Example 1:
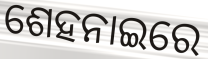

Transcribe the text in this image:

ଶେହନାଇରେ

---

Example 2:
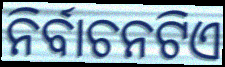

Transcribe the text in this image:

ନିର୍ବାଚନଟିଏ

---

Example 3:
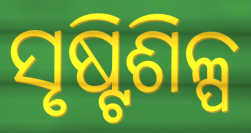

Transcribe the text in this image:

ସୃଷ୍ଟିଶିଳ୍ପ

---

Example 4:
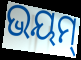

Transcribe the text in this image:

ଭୟମ୍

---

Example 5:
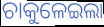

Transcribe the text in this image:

ଚାକୁଳେଇଲା